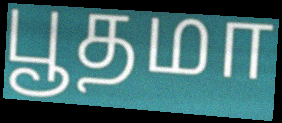
பூதமா